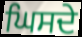
ਘਿਸਦੇ